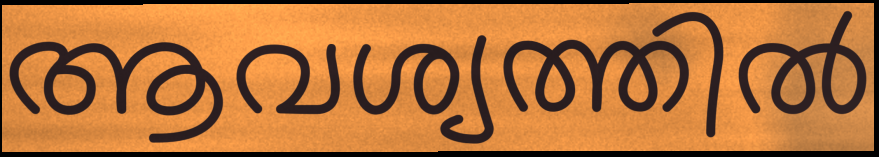
ആവശ്യത്തിൽ